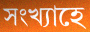
সংখ্যাহে